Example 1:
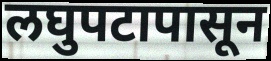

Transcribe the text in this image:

लघुपटापासून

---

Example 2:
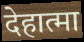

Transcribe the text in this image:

देहात्मा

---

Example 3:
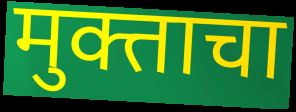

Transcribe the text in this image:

मुक्ताचा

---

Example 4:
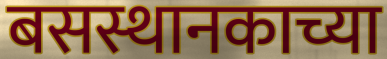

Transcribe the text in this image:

बसस्थानकाच्या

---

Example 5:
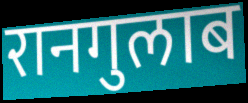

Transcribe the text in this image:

रानगुलाब